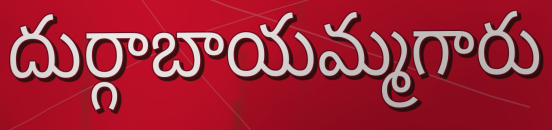
దుర్గాబాయమ్మగారు